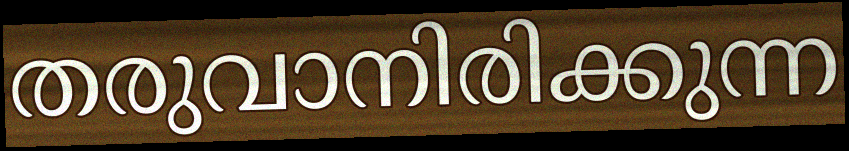
തരുവാനിരിക്കുന്ന